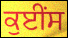
ਕੁਈਂਸ